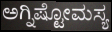
ಅಗ್ನಿಷ್ಟೋಮಸ್ಯ